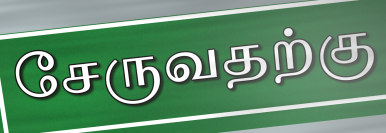
சேருவதற்கு